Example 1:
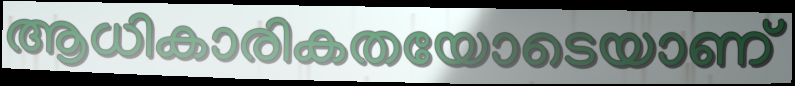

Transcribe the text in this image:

ആധികാരികതയോടെയാണ്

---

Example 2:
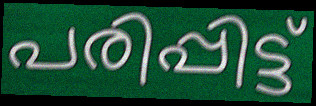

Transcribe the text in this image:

പരിപ്പിട്ട്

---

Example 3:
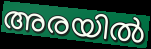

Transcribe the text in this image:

അരയിൽ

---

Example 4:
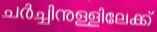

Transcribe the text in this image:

ചർച്ചിനുള്ളിലേക്ക്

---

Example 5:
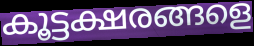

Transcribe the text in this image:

കൂട്ടക്ഷരങ്ങളെ